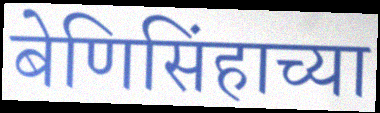
बेणिसिंहाच्या